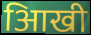
आिखी